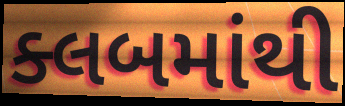
ક્લબમાંથી